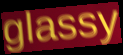
glassy